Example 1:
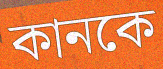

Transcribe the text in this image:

কানকে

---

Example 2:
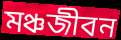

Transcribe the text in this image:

মঞ্চজীবন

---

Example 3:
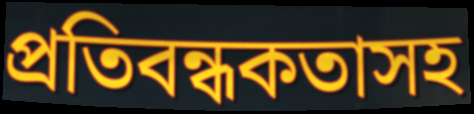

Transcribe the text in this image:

প্রতিবন্ধকতাসহ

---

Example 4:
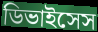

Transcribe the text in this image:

ডিভাইসেস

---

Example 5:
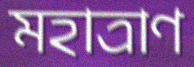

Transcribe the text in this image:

মহাত্রাণ